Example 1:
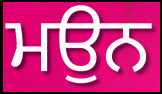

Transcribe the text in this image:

ਮਉਨ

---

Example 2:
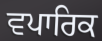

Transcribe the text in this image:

ਵਪਾਰਿਕ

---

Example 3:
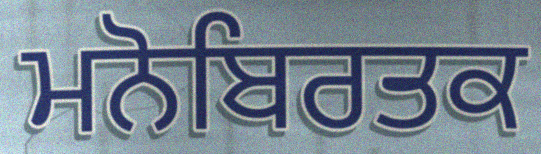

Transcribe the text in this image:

ਮਨੋਬਿਰਤਕ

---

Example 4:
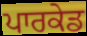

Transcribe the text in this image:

ਪਾਰਕੇਡ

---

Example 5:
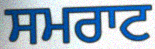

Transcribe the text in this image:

ਸਮਰਾਟ